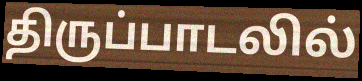
திருப்பாடலில்